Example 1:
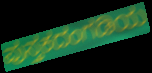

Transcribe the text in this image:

ಪುಸ್ತಕದಂಗಡಿಯ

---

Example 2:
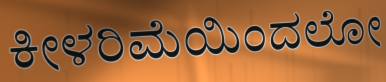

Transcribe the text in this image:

ಕೀಳರಿಮೆಯಿಂದಲೋ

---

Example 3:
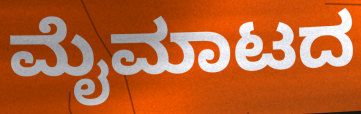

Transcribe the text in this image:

ಮೈಮಾಟದ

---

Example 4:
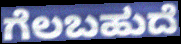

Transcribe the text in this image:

ಗೆಲಬಹುದೆ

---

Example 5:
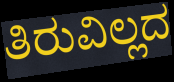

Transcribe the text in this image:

ತಿರುವಿಲ್ಲದ